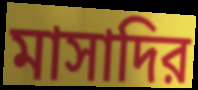
মাসাদির